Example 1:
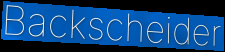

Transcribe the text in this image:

Backscheider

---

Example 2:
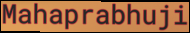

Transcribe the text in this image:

Mahaprabhuji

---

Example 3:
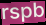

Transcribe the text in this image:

rspb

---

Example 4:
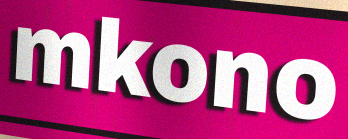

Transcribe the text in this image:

mkono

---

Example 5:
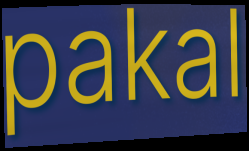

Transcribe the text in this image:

pakal